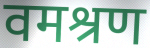
वमश्रण